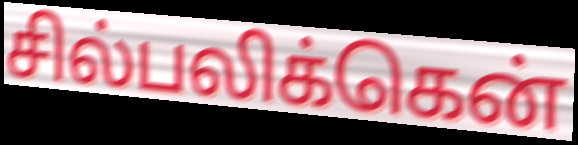
சில்பலிக்கென்